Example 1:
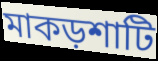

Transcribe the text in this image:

মাকড়শাটি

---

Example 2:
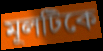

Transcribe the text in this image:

মূলটিকে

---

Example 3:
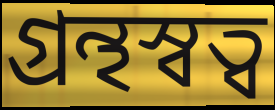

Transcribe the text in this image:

গ্রন্থস্বত্ব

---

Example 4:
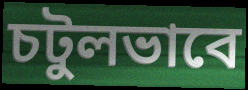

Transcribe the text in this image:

চটুলভাবে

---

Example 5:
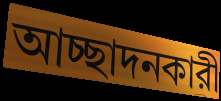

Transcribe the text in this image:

আচ্ছাদনকারী